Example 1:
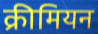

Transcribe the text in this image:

क्रीमियन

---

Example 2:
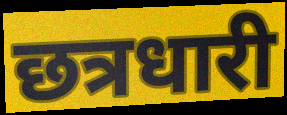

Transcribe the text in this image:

छत्रधारी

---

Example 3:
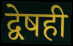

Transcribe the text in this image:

द्वेषही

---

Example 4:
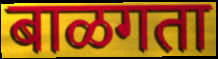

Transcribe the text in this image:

बाळगता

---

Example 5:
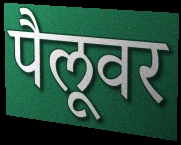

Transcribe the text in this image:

पैलूवर